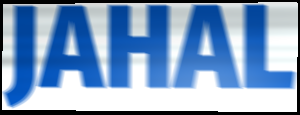
JAHAL